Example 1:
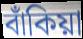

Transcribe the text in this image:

বাঁকিয়া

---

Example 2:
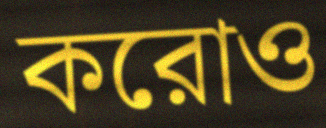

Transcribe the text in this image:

করোও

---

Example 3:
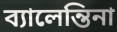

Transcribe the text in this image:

ব্যালেন্তিনা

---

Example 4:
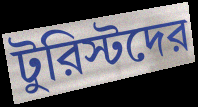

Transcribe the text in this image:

টুরিস্টদের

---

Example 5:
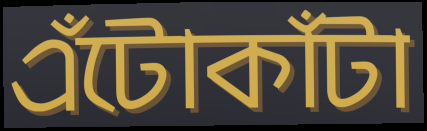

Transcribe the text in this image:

এঁটোকাঁটা